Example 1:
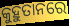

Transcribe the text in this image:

କୁହୁତାନରେ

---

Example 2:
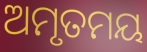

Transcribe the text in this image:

ଅମୃତମୟ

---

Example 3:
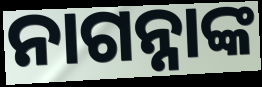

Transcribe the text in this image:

ନାଗନ୍ନାଙ୍କ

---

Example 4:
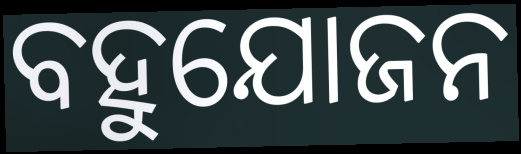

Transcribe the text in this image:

ବହୁଯୋଜନ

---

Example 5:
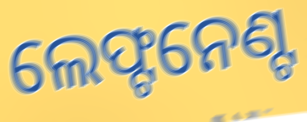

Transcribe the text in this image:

ଲେଫ୍ଟନେଣ୍ଟ